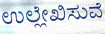
ಉಲ್ಲೇಖಿಸುವೆ